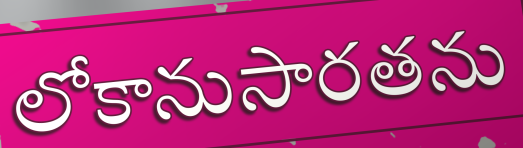
లోకానుసారతను